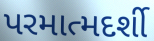
પરમાત્મદર્શી